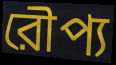
রৌপ্য